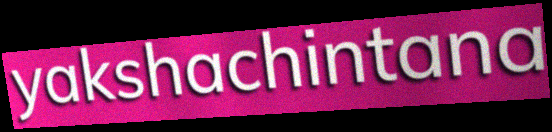
yakshachintana